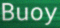
Buoy